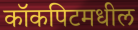
कॉकपिटमधील